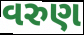
વરુણ